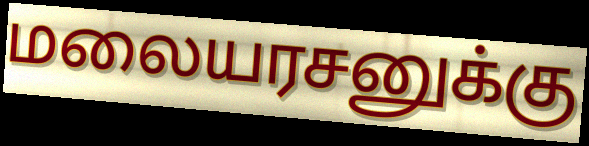
மலையரசனுக்கு